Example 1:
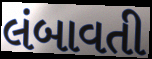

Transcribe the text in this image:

લંબાવતી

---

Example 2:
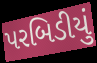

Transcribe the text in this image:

પરબિડીયું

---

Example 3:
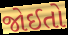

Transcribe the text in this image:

જોઈતો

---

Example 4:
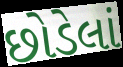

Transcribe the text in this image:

છોડેલાં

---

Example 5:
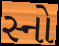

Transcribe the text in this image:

સ્નો